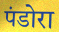
पंडोरा